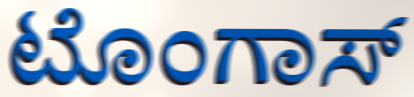
ಟೊಂಗಾಸ್